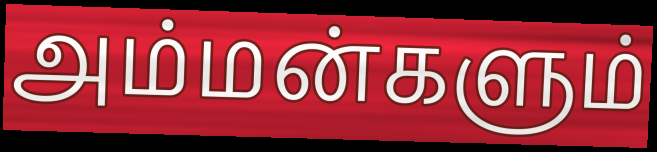
அம்மன்களும்